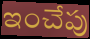
ఇంచేపు